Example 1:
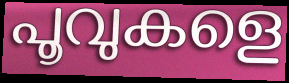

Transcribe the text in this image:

പൂവുകളെ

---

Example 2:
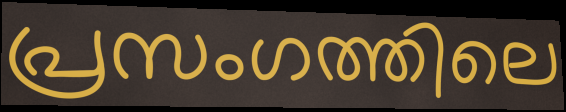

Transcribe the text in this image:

പ്രസംഗത്തിലെ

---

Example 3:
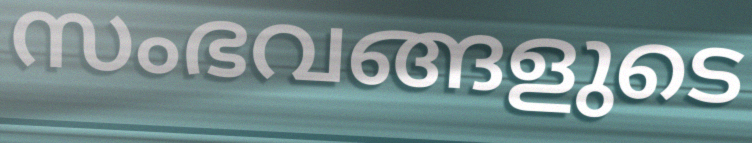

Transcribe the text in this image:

സംഭവങ്ങളുടെ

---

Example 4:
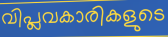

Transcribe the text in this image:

വിപ്ലവകാരികളുടെ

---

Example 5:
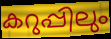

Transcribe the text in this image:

കറുപ്പിലും